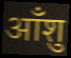
आँशु